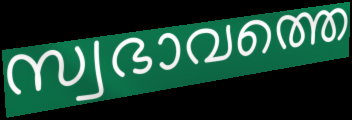
സ്വഭാവത്തെ